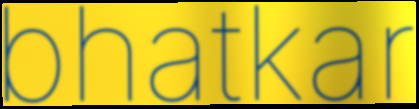
bhatkar